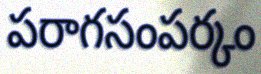
పరాగసంపర్కం